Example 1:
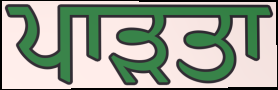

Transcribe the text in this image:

ਪਾੜਤਾ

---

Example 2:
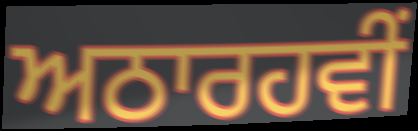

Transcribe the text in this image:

ਅਠਾਰਹਵੀਂ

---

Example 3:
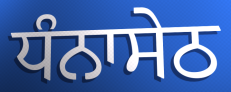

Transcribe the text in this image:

ਧੰਨਾਸੇਠ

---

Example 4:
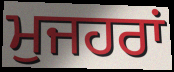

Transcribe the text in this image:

ਮੁਜਹਰਾਂ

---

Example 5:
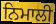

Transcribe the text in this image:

ਨਿਮਾਲੀ